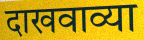
दाखवाव्या